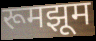
रूमझूम